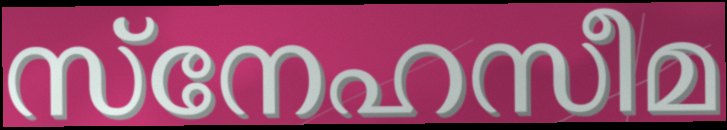
സ്നേഹസീമ